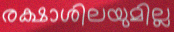
രക്ഷാശിലയുമില്ല